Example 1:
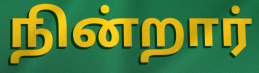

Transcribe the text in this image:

நின்றார்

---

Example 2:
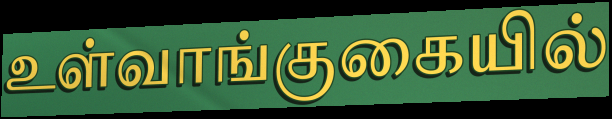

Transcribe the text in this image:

உள்வாங்குகையில்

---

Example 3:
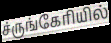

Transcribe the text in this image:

ச்ருங்கேரியில்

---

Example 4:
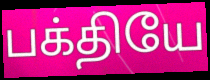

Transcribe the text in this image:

பக்தியே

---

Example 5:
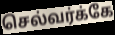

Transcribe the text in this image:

செல்வர்க்கே